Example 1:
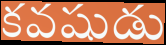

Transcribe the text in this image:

కవషుడు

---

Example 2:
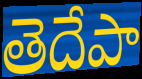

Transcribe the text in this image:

తెదేపా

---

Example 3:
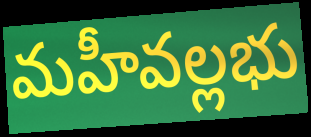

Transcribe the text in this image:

మహీవల్లభు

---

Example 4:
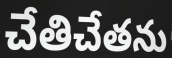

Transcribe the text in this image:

చేతిచేతను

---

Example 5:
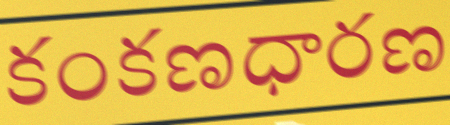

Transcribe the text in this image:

కంకణధారణ